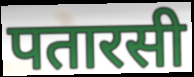
पतारसी